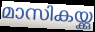
മാസികയ്ക്കു